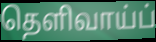
தெளிவாய்ப்